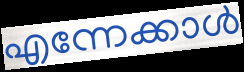
എന്നേക്കാൾ